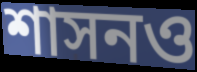
শাসনও